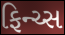
ફિન્ચ્સ